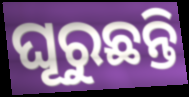
ଘୂରୁଛନ୍ତି